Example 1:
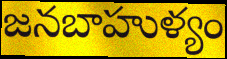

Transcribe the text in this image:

జనబాహుళ్యం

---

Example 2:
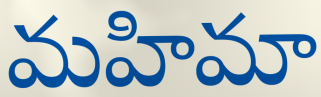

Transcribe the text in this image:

మహిమా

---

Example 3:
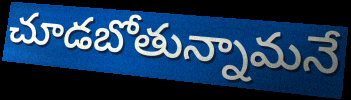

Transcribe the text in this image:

చూడబోతున్నామనే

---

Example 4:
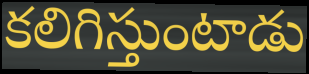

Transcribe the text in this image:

కలిగిస్తుంటాడు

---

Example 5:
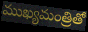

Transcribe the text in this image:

ముఖ్యమంత్రితో